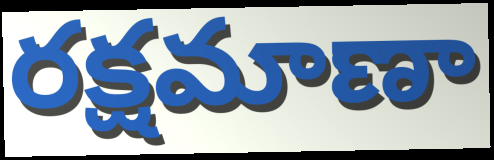
రక్షమాణా